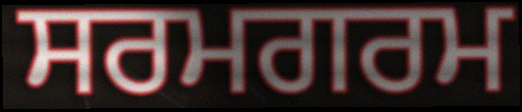
ਸਰਮਗਰਮ